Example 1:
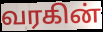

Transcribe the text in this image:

வரகின்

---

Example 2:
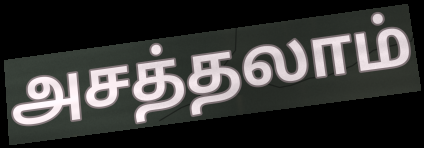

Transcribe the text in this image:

அசத்தலாம்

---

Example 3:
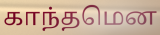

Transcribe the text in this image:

காந்தமென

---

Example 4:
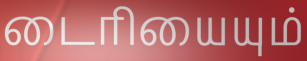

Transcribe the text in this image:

டைரியையும்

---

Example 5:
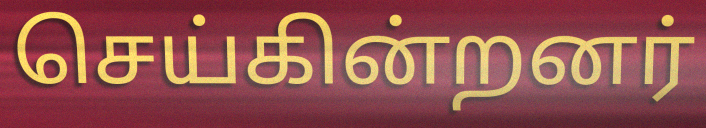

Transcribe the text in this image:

செய்கின்றனர்